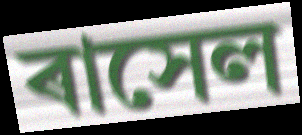
ৰাসেল